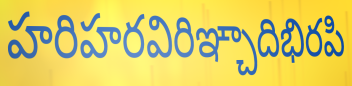
హరిహరవిరిఞ్చాదిభిరపి